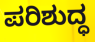
ಪರಿಶುದ್ಧ